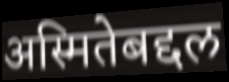
अस्मितेबद्दल